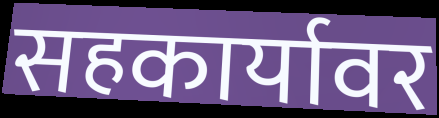
सहकार्यावर